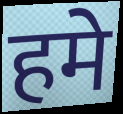
हमे